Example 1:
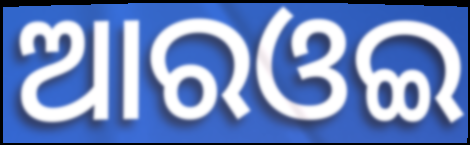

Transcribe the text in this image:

ଆରଓଇ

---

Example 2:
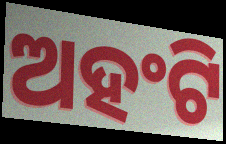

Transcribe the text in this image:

ଅହଂଟି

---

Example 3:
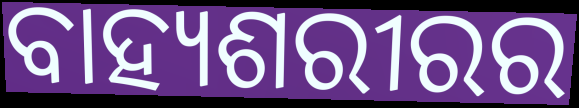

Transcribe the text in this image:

ବାହ୍ୟଶରୀରର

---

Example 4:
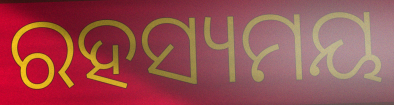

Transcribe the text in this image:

ରହସ୍ୟମୟ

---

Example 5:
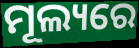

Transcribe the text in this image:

ମୂଲ୍ୟରେ